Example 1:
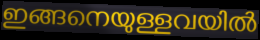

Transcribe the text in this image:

ഇങ്ങനെയുള്ളവയിൽ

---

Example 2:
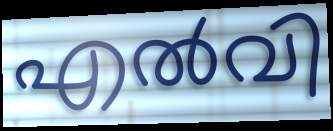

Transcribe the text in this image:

എൽവി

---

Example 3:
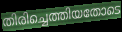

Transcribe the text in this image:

തിരിച്ചെത്തിയതോടെ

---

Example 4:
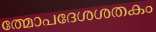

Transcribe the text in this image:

ത്മോപദേശശതകം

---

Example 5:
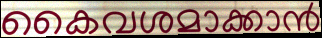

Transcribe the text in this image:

കൈവശമാക്കാൻ